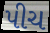
પીચ